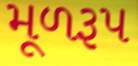
મૂળરૂપ